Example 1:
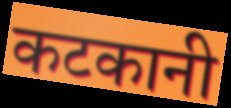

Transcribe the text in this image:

कटकानी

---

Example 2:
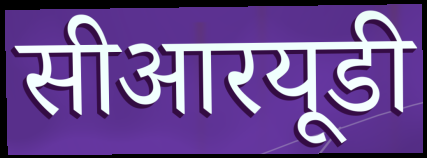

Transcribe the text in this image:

सीआरयूडी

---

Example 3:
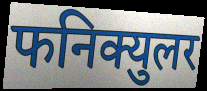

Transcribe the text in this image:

फनिक्युलर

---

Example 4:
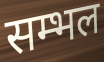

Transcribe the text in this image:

सम्भल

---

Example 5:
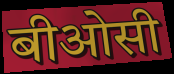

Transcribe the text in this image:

बीओसी